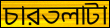
চারতলাটা